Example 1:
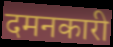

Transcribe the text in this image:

दमनकारी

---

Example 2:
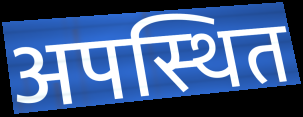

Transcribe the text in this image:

अपस्थित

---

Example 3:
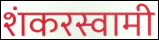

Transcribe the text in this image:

शंकरस्वामी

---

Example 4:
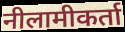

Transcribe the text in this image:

नीलामीकर्ता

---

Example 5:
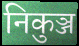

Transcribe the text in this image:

निकुञ्ज